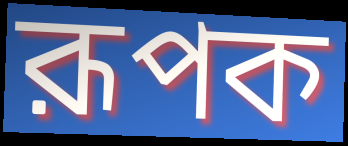
রূপক